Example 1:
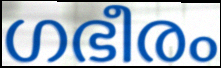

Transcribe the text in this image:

ഗഭീരം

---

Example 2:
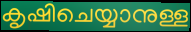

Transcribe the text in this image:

കൃഷിചെയ്യാനുള്ള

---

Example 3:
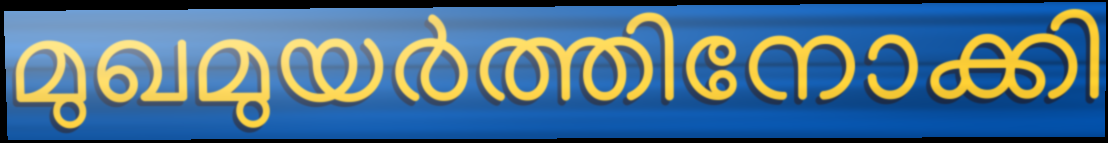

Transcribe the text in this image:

മുഖമുയർത്തിനോക്കി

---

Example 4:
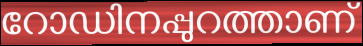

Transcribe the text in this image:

റോഡിനപ്പുറത്താണ്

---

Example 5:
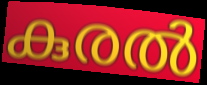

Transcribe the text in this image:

കുരൽ